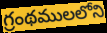
గ్రంథములలోని